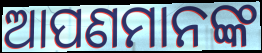
ଆପଣମାନଙ୍କ